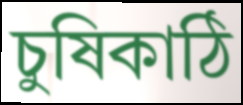
চুষিকাঠি